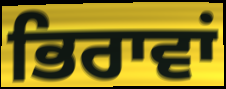
ਭਿਰਾਵਾਂ